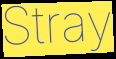
Stray